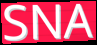
SNA